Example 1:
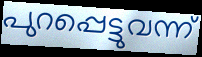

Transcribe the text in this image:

പുറപ്പെട്ടുവന്ന്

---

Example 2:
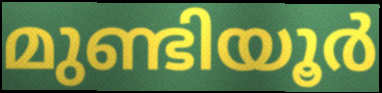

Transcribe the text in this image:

മുണ്ടിയൂർ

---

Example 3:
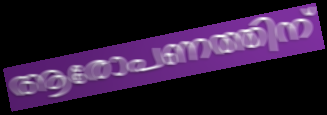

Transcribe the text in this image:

ആരോപണത്തിന്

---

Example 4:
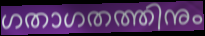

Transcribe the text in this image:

ഗതാഗതത്തിനും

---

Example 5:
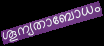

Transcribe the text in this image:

ശൂന്യതാബോധം